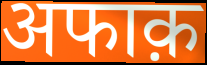
अफाक़